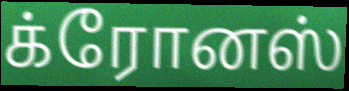
க்ரோனஸ்